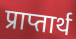
प्राप्तार्थ